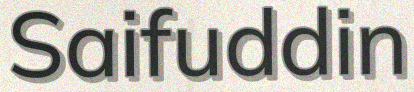
Saifuddin